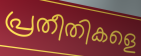
പ്രതീതികളെ